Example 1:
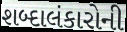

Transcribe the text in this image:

શબ્દાલંકારોની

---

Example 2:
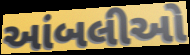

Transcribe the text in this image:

આંબલીઓ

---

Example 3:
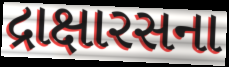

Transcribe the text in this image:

દ્રાક્ષારસના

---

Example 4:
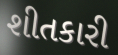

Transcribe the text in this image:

શીતકારી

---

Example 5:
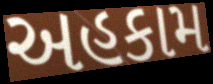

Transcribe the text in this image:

અહકામ